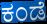
ಕಂಡೆ